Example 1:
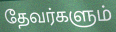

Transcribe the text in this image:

தேவர்களும்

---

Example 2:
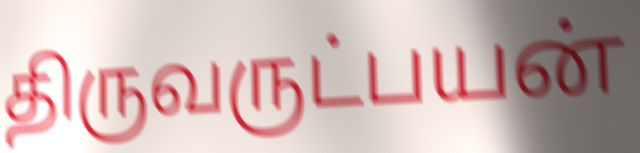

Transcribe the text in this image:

திருவருட்பயன்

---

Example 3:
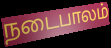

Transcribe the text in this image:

நடைபாலம்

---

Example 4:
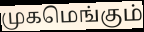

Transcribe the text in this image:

முகமெங்கும்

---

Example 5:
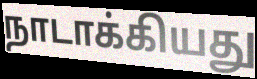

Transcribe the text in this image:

நாடாக்கியது